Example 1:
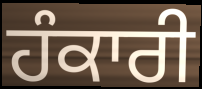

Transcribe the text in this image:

ਹੰਕਾਰੀ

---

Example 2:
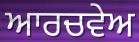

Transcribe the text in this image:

ਆਰਚਵੇਅ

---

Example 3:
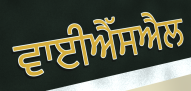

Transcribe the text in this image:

ਵਾਈਐੱਸਐਲ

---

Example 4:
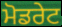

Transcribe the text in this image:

ਮੋਡਰੇਟ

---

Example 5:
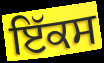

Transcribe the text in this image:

ਇੱਕਸ